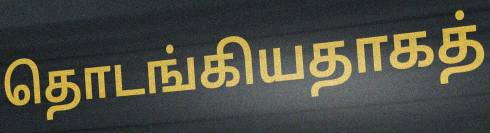
தொடங்கியதாகத்